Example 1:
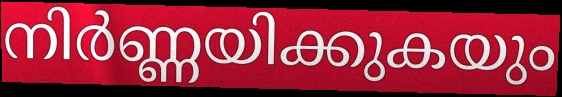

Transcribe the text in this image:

നിർണ്ണയിക്കുകയും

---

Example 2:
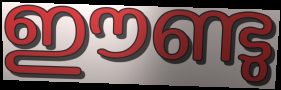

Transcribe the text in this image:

ഈണ്ടു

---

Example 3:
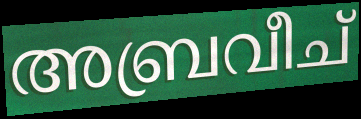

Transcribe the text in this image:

അബ്രവീച്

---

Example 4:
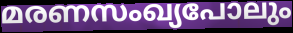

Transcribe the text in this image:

മരണസംഖ്യപോലും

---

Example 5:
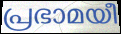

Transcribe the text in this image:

പ്രഭാമയീ